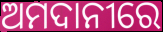
ଅମଦାନୀରେ